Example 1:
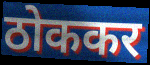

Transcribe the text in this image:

ठोककर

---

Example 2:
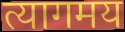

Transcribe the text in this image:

त्यागमय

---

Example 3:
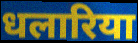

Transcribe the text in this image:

धलारिया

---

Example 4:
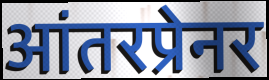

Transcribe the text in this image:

आंतरप्रेनर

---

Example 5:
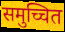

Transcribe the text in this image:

समुच्चित